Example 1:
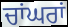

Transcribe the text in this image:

ਚਾਂਘਰਾਂ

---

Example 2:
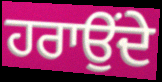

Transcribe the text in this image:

ਹਰਾਉਂਦੇ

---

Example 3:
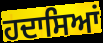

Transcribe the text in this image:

ਹਦਾਸਿਆਂ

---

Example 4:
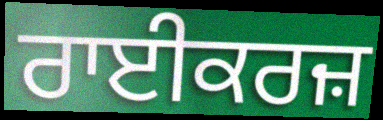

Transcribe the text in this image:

ਰਾਈਕਰਜ਼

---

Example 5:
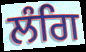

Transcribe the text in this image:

ਲੰਗਿ